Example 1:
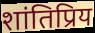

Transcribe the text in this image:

शांतिप्रिय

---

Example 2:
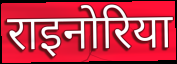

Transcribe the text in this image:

राइनोरिया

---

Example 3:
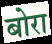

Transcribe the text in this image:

बोरा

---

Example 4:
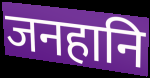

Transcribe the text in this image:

जनहानि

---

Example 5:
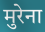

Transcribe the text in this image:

मुरेना